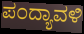
ಪಂದ್ಯಾವಳಿ